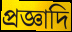
প্রজ্ঞাদি